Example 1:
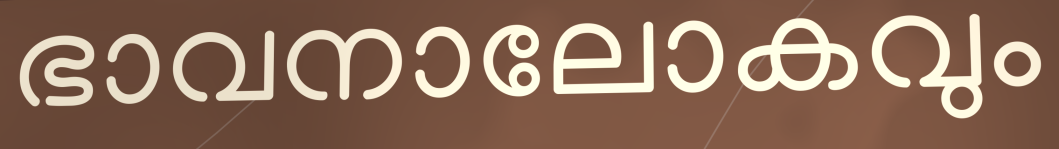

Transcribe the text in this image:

ഭാവനാലോകവും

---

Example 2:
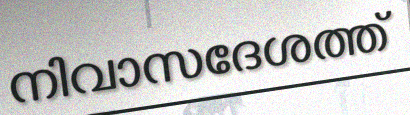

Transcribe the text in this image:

നിവാസദേശത്ത്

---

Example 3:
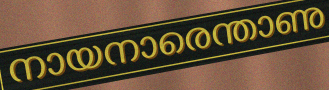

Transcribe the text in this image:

നായനാരെന്താണു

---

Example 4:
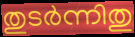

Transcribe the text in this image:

തുടർന്നിതു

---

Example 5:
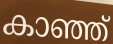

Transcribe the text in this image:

കാഞ്ഞ്